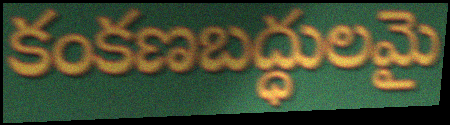
కంకణబద్ధులమై